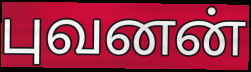
புவனன்